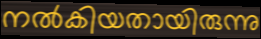
നൽകിയതായിരുന്നു